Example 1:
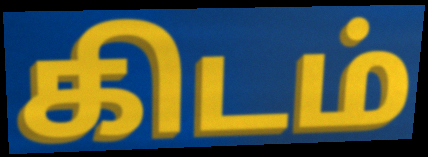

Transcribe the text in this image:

கிடம்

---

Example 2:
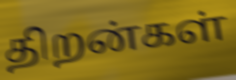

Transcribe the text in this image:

திறன்கள்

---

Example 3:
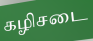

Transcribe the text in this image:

கழிசடை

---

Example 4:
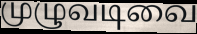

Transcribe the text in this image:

முழுவடிவை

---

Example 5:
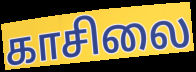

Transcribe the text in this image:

காசிலை